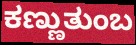
ಕಣ್ಣುತುಂಬ